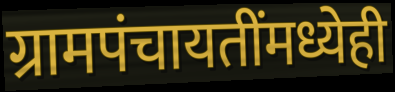
ग्रामपंचायतींमध्येही